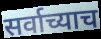
सर्वाच्याच